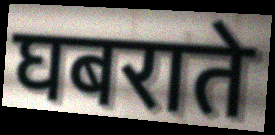
घबराते